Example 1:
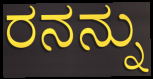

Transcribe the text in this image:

ರನನ್ನು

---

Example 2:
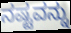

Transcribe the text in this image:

ನಷ್ಟವನ್ನು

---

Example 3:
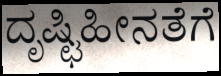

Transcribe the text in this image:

ದೃಷ್ಟಿಹೀನತೆಗೆ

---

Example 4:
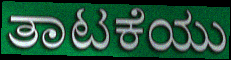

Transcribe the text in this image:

ತಾಟಕೆಯು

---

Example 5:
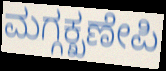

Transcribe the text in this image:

ಮಗ್ಗಕ್ಖಣೇಪಿ